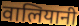
वालियानी